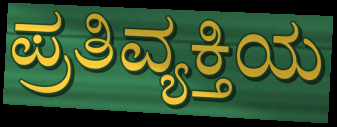
ಪ್ರತಿವ್ಯಕ್ತಿಯ